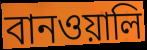
বানওয়ালি